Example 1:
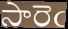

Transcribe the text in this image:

సారెఁ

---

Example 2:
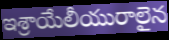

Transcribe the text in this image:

ఇశ్రాయేలీయురాలైన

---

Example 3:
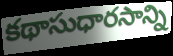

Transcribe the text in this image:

కథాసుధారసాన్ని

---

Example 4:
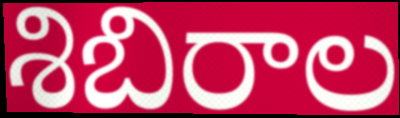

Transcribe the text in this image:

శిబిరాల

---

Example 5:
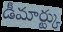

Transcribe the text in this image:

డీమార్ట్కు